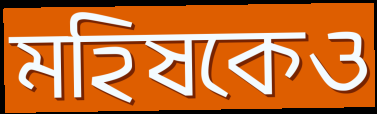
মহিষকেও